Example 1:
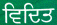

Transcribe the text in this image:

ਵਿਦਿਤ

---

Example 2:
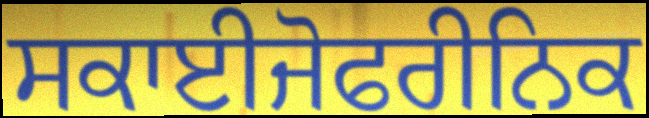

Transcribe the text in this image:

ਸਕਾਈਜੋਫਰੀਨਿਕ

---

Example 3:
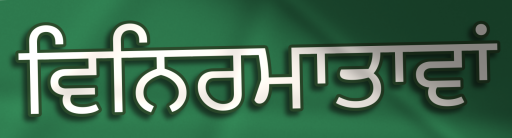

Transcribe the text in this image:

ਵਿਨਿਰਮਾਤਾਵਾਂ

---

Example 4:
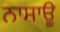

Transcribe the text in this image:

ਨਾਸਾਊ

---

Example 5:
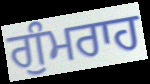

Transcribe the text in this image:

ਗੁੰਮਰਾਹ